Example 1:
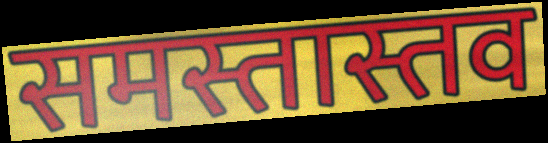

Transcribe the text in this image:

समस्तास्तव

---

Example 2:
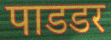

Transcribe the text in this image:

पाडडर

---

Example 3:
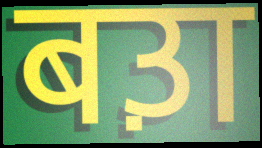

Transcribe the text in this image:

बउ़ा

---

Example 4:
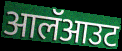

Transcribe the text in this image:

आलॅआउट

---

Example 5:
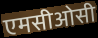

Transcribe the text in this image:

एमसीओसी